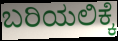
ಬರಿಯಲಿಕ್ಕೆ